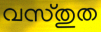
വസ്തുത